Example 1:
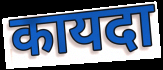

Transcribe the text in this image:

कायदा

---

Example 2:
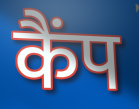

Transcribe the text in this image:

कैंप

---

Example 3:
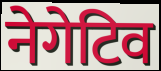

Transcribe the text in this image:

नेगेटिव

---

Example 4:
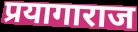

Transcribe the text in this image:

प्रयागाराज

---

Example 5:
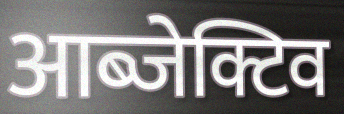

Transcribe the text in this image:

आब्जेक्टिव